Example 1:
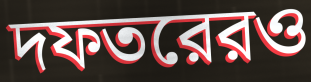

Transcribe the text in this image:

দফতরেরও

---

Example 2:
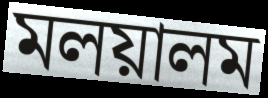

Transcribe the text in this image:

মলয়ালম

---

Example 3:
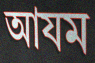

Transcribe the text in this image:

আযম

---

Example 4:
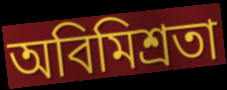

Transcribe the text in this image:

অবিমিশ্রতা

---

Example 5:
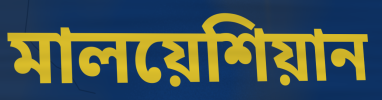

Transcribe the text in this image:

মালয়েশিয়ান